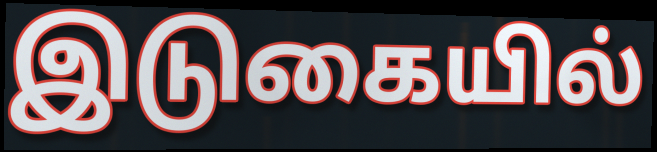
இடுகையில்